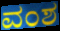
ವಂಶ